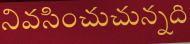
నివసించుచున్నది